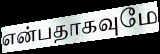
என்பதாகவுமே